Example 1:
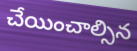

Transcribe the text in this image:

చేయించాల్సిన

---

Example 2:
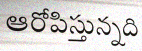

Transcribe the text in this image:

ఆరోపిస్తున్నది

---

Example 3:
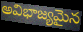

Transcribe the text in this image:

అవిభాజ్యమైన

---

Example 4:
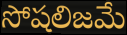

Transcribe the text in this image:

సోషలిజమే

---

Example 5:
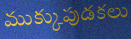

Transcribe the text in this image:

ముక్కుపుడకలు